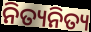
ନିତ୍ୟନିତ୍ୟ